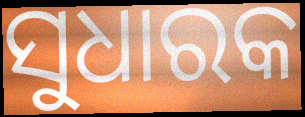
ସୁଧାରକ